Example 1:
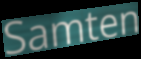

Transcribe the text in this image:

Samten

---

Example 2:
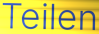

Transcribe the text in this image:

Teilen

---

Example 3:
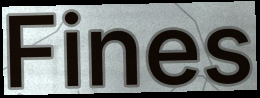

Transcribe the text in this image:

Fines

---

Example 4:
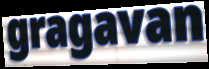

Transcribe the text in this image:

gragavan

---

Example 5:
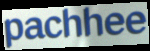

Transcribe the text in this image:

pachhee